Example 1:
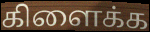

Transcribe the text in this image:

கிளைக்க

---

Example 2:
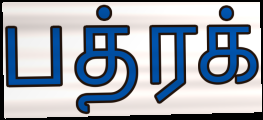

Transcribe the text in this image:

பத்ரக்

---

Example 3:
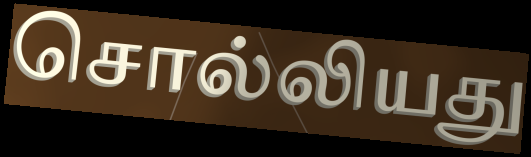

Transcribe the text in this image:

சொல்லியது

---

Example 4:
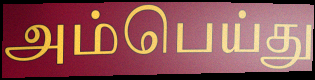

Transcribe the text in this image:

அம்பெய்து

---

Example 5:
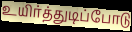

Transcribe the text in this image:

உயிர்த்துடிப்போடு